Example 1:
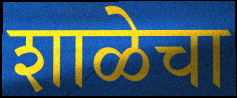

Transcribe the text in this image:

शाळेचा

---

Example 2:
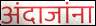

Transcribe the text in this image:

अंदाजांना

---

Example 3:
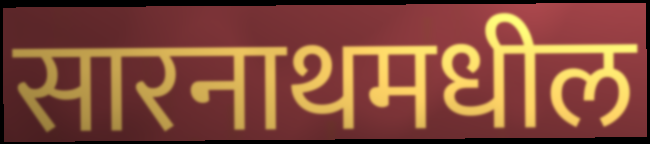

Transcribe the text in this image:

सारनाथमधील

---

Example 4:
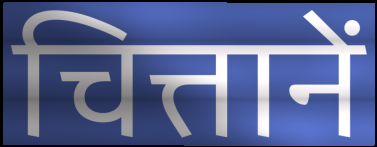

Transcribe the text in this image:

चित्तानें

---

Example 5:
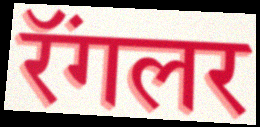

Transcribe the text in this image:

रॅंगलर